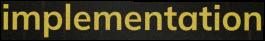
implementation